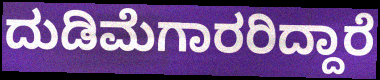
ದುಡಿಮೆಗಾರರಿದ್ದಾರೆ